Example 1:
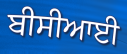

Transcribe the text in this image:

ਬੀਸੀਆਈ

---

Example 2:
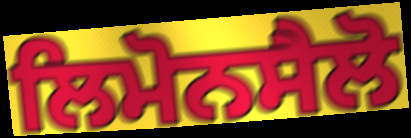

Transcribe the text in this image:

ਲਿਮੋਨਸੈਲੋ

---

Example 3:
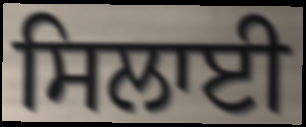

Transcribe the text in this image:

ਸਿਲਾਈ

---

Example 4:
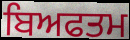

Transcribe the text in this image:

ਬਿਅਫਤਮ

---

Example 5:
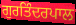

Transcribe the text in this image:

ਗੁਰਤਿੰਦਰਪਾਲ